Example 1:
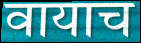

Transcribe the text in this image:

वायाच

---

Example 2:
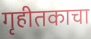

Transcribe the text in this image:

गृहीतकाचा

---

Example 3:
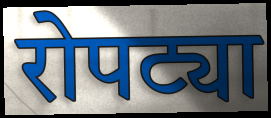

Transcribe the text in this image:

रोपट्या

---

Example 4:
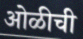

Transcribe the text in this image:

ओळीची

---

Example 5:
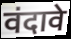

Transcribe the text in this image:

वंदावे